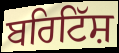
ਬਰਿਟਿੱਸ਼